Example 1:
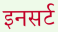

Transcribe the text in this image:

इनसर्ट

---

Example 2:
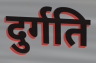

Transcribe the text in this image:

दुर्गति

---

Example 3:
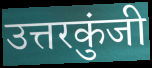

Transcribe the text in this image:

उत्तरकुंजी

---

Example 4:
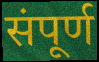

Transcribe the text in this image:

संपूर्ण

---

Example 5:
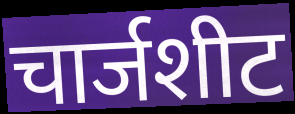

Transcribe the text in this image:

चार्जशीट